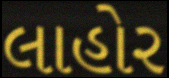
લાહોર